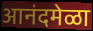
आनंदमेळा